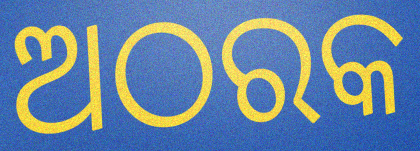
ଅଠରକ